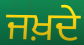
ਜਖ਼ਦੇ